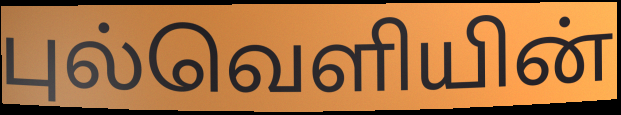
புல்வெளியின்